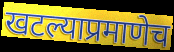
खटल्याप्रमाणेच